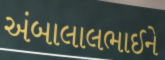
અંબાલાલભાઈને